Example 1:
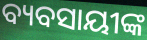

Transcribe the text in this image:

ବ୍ୟବସାୟୀଙ୍କ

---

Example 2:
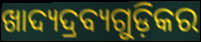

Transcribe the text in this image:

ଖାଦ୍ୟଦ୍ରବ୍ୟଗୁଡ଼ିକର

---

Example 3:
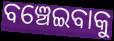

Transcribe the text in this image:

ବଞ୍ଚେଇବାକୁ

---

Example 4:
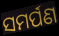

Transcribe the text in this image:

ସମର୍ପଣ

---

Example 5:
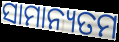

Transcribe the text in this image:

ସାମାନ୍ୟତମ